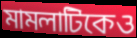
মামলাটিকেও